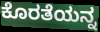
ಕೊರತೆಯನ್ನ